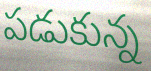
పడుకున్న